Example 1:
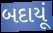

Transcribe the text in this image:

બદાયૂં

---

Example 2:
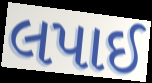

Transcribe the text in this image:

લપાઈ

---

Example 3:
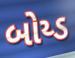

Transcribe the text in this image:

બોય્ડ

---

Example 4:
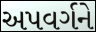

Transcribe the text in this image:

અપવર્ગને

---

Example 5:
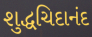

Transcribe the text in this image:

શુદ્ધચિદાનંદ